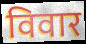
विवार